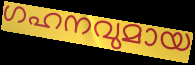
ഗഹനവുമായ